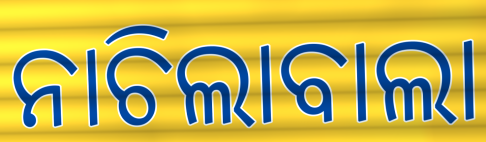
ନାଚିଲାବାଲା